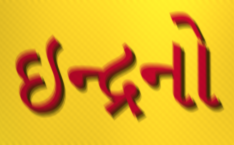
ઇન્દ્રનો